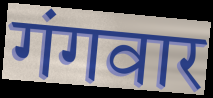
गंगवार